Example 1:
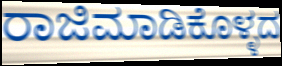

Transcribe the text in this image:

ರಾಜಿಮಾಡಿಕೊಳ್ಳದ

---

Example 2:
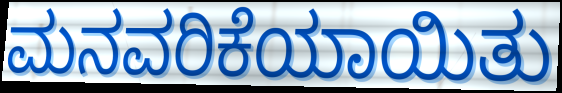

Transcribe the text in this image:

ಮನವರಿಕೆಯಾಯಿತು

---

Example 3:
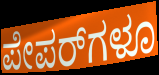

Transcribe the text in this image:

ಪೇಪರ್‌ಗಳೂ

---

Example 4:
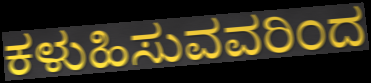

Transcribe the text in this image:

ಕಳುಹಿಸುವವರಿಂದ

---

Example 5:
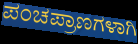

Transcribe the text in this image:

ಪಂಚಪ್ರಾಣಗಳಾಗಿ